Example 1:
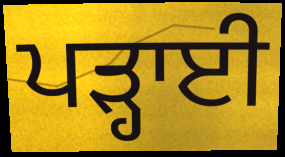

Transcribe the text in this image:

ਪੜ੍ਹਾਈ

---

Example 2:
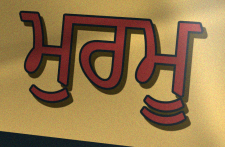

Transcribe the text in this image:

ਮੁਰਮੂ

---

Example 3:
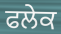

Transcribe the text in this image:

ਫਲੇਕ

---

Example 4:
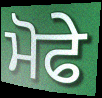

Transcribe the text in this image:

ਮੋਫੇ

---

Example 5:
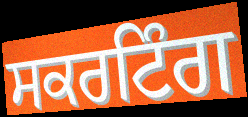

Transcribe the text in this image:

ਸਕਰਟਿੰਗ